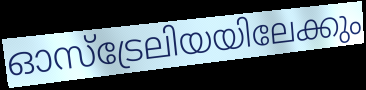
ഓസ്ട്രേലിയയിലേക്കും